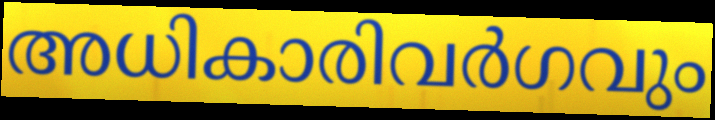
അധികാരിവർഗവും